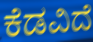
ಕೆಡವಿದೆ